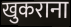
खुकराना